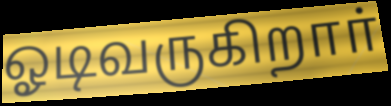
ஓடிவருகிறார்